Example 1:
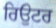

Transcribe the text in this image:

ਰਿਉਟਰ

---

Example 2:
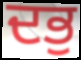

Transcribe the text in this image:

ਦਭੁ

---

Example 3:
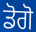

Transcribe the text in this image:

ਡੋਗੋ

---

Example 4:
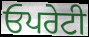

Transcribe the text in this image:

ਓਪਰੇਟੀ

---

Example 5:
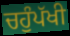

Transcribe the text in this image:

ਚਹੁੰਪੱਖੀ